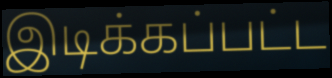
இடிக்கப்பட்ட